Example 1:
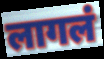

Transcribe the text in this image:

लागलं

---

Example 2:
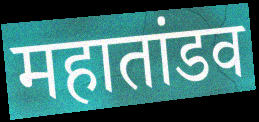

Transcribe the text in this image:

महातांडव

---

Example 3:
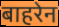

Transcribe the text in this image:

बाहरेन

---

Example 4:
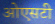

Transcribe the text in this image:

ओएसटी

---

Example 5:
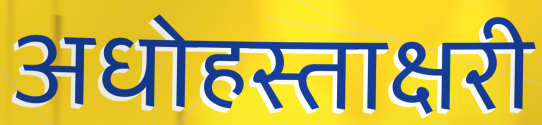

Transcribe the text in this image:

अधोहस्ताक्षरी